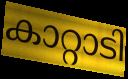
കാറ്റാടി